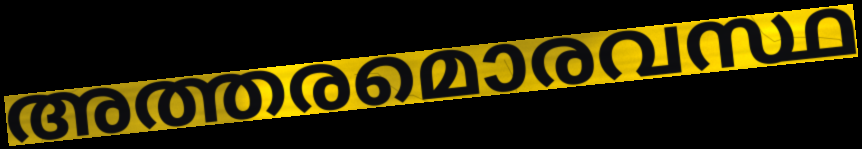
അത്തരമൊരവസ്ഥ